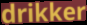
drikker